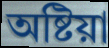
অষ্টিয়া